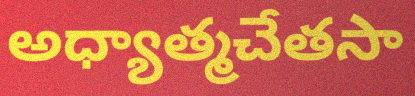
అధ్యాత్మచేతసా